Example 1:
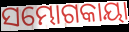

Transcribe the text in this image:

ସମ୍ଭୋଗକାୟା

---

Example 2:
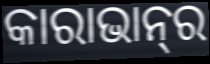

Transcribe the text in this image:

କାରାଭାନ୍‍ର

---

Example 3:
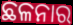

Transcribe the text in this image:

ଛଳନାର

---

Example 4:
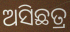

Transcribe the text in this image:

ଅସିଛତ୍ର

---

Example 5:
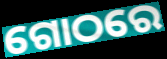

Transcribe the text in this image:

ଗୋଠରେ